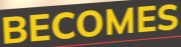
BECOMES